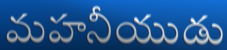
మహనీయుడు